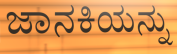
ಜಾನಕಿಯನ್ನು